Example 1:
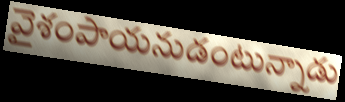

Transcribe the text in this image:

వైశంపాయనుడంటున్నాడు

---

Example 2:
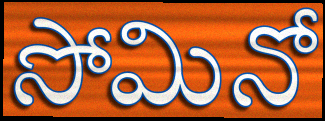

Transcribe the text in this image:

సోమినో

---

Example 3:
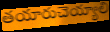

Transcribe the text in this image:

తయారుచెయ్యాలి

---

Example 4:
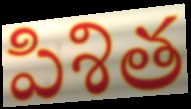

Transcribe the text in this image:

పిశిత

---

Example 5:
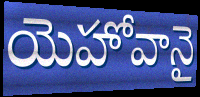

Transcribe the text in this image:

యెహోవానై